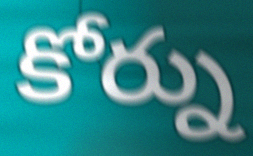
కోర్ను